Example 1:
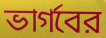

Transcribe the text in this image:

ভার্গবের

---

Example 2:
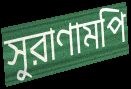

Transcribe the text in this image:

সুরাণামপি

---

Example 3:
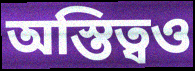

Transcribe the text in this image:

অস্তিত্বও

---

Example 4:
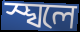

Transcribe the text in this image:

স্খলে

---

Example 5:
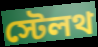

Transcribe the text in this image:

স্টেলথ